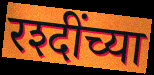
रश्दींच्या